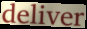
deliver